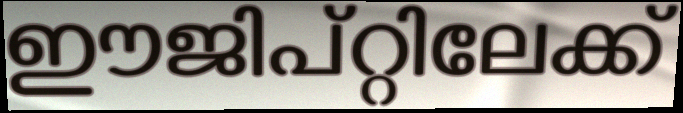
ഈജിപ്റ്റിലേക്ക്